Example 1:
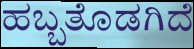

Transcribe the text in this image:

ಹಬ್ಬತೊಡಗಿದೆ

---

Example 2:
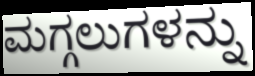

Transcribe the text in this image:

ಮಗ್ಗಲುಗಳನ್ನು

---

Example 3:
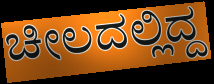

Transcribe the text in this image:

ಚೀಲದಲ್ಲಿದ್ದ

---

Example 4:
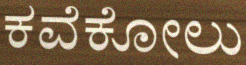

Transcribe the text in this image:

ಕವೆಕೋಲು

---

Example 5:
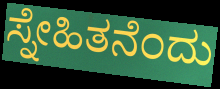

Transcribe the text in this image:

ಸ್ನೇಹಿತನೆಂದು